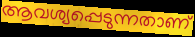
ആവശ്യപ്പെടുന്നതാണ്